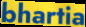
bhartia